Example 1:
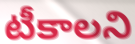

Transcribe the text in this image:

టీకాలని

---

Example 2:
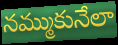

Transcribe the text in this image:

నమ్ముకునేలా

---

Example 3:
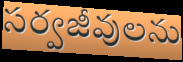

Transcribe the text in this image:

సర్వజీవులను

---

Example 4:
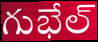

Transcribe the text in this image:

గుభేల్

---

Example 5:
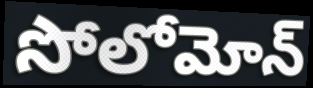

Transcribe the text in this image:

సోలోమోన్